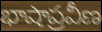
భాషాప్రవీణ